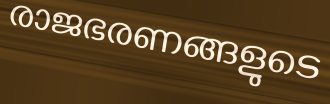
രാജഭരണങ്ങളുടെ